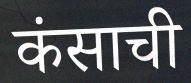
कंसाची